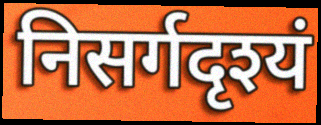
निसर्गदृश्यं